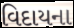
વિદાયના